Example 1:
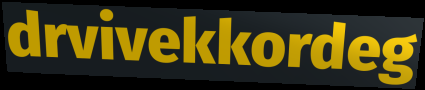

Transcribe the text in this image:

drvivekkordeg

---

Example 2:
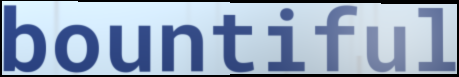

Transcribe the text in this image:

bountiful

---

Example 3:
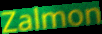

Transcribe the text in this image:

Zalmon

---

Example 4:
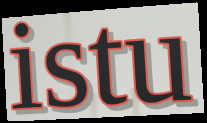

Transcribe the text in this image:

istu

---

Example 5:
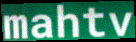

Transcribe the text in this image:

mahtv